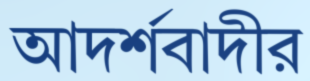
আদর্শবাদীর